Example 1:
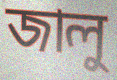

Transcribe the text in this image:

জালু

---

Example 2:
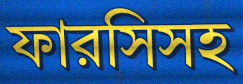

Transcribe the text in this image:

ফারসিসহ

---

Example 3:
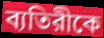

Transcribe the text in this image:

ব্যতিরীকে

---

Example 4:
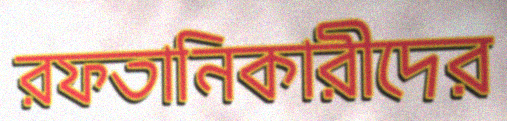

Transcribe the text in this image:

রফতানিকারীদের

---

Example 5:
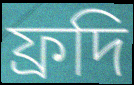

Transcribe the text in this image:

ফ্রদি